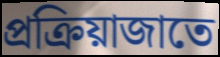
প্রক্রিয়াজাতে